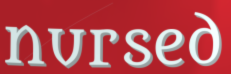
nursed